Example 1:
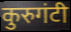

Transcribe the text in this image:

कुरुगंटी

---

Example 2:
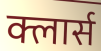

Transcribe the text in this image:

क्लार्स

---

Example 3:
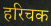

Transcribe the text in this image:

हरिचक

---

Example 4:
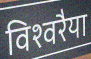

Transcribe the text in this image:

विश्वरैया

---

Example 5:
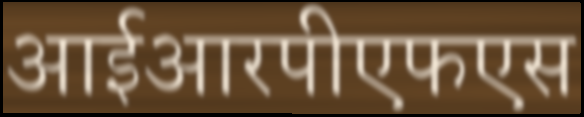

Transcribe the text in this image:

आईआरपीएफएस